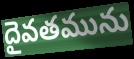
దైవతమును